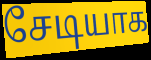
சேடியாக